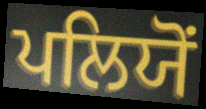
ਪਲਿਯੋਂ